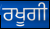
ਰਖੂਗੀ